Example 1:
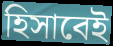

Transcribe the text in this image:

হিসাবেই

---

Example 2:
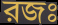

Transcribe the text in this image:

রজঃ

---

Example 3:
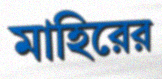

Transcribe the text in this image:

মাহিরের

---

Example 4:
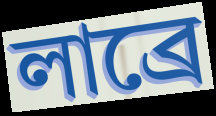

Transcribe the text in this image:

লাব্রে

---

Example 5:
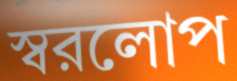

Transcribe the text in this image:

স্বরলোপ